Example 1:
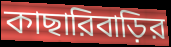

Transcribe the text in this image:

কাছারিবাড়ির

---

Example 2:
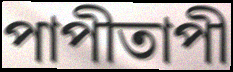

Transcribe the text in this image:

পাপীতাপী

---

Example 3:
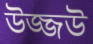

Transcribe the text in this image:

উজ্জউ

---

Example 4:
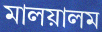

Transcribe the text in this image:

মালয়ালম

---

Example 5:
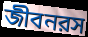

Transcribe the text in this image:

জীবনরস